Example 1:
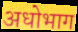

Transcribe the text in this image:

अधोभाग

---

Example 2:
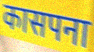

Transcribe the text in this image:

कासपना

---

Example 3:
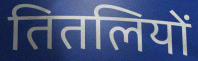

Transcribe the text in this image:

तितलियों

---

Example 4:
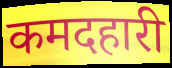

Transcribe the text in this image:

कमदहारी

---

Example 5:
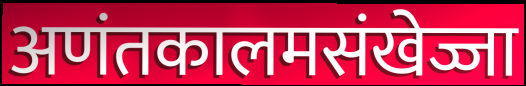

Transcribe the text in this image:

अणंतकालमसंखेज्जा